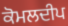
ਕੋਮਲਦੀਪ